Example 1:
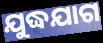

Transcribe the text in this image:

ଯୁଦ୍ଧଯାଗ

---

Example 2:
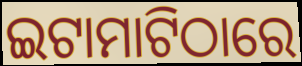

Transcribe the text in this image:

ଇଟାମାଟିଠାରେ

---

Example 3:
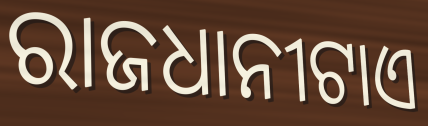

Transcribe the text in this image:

ରାଜଧାନୀଟାଏ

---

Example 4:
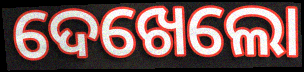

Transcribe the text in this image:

ଦେଖେଲୋ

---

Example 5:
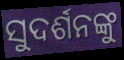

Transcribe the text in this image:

ସୁଦର୍ଶନଙ୍କୁ